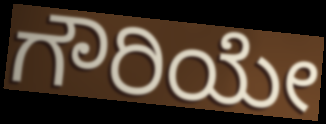
ಗೌರಿಯೇ